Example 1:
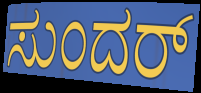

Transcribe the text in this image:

ಸುಂದರ್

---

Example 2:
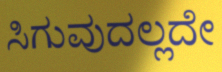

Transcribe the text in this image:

ಸಿಗುವುದಲ್ಲದೇ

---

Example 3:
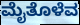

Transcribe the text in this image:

ಮೈತೊಳೆವ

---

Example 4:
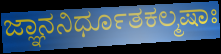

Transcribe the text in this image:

ಜ್ಞಾನನಿರ್ಧೂತಕಲ್ಮಷಾಃ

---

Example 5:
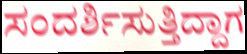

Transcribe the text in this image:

ಸಂದರ್ಶಿಸುತ್ತಿದ್ದಾಗ